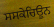
ਸਸਕੇਚਿਊਨ